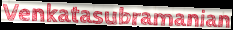
Venkatasubramanian